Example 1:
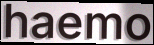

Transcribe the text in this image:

haemo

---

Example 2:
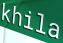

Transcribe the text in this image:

khila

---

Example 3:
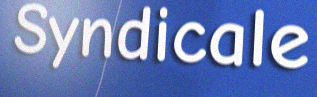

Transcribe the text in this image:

Syndicale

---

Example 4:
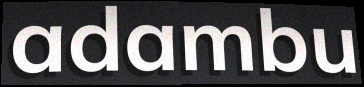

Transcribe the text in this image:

adambu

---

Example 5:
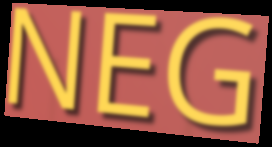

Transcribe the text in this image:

NEG